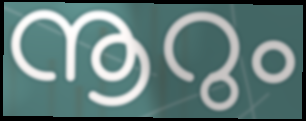
നൂറും